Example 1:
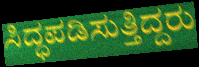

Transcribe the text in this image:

ಸಿದ್ಧಪಡಿಸುತ್ತಿದ್ದರು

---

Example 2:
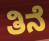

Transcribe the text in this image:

ತಿನೆ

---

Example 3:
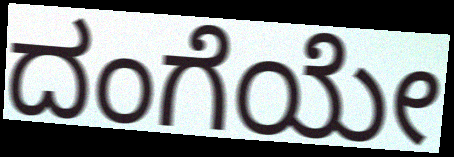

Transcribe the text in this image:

ದಂಗೆಯೇ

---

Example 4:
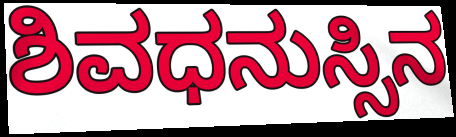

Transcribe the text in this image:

ಶಿವಧನುಸ್ಸಿನ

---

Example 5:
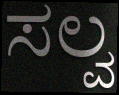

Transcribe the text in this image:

ಸಲ್ವ